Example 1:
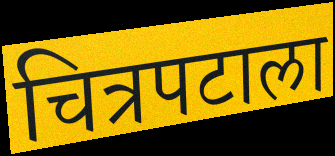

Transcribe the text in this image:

चित्रपटाला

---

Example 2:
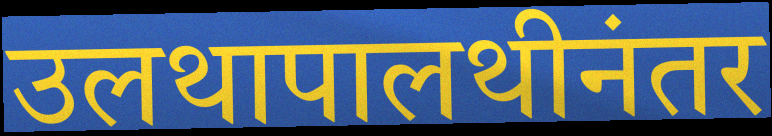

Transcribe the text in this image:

उलथापालथीनंतर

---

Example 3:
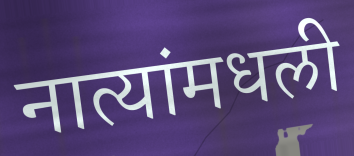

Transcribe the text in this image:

नात्यांमधली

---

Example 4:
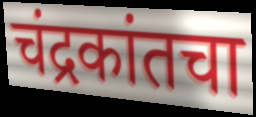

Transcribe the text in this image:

चंद्रकांतचा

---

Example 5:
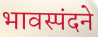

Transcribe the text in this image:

भावस्पंदने